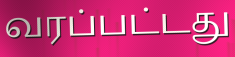
வரப்பட்டது